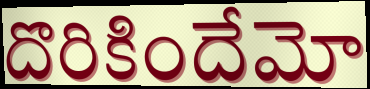
దొరికిందేమో